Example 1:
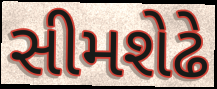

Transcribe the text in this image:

સીમશેઢે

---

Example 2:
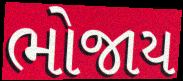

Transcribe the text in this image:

ભોજાય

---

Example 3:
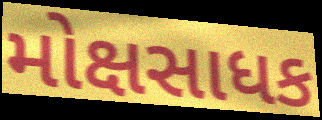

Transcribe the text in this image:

મોક્ષસાધક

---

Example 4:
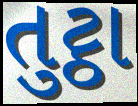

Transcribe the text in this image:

તુટ્ઠા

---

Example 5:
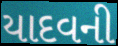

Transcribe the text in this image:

યાદવની